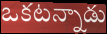
ఒకటన్నాడు